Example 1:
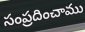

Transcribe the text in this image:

సంప్రదించాము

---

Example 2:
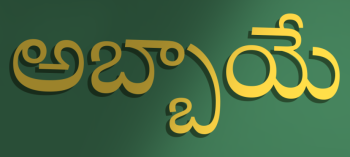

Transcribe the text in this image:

అబ్బాయే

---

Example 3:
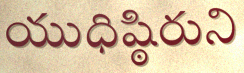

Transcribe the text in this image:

యుధిష్ఠిరుని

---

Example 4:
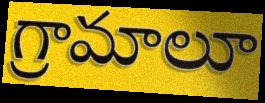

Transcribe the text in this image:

గ్రామాలూ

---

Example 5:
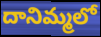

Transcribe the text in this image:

దానిమ్మలో